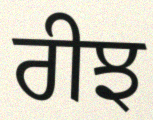
ਰੀਝ